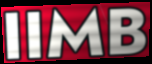
IIMB